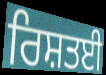
ਰਿਸ਼ਤਈ